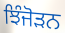
ਝਿੰਜੋੜਨ